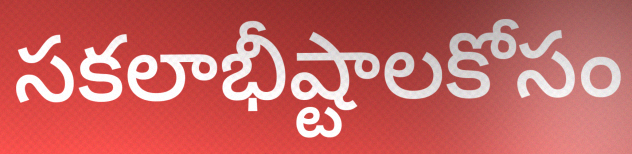
సకలాభీష్టాలకోసం